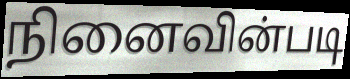
நினைவின்படி